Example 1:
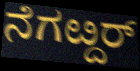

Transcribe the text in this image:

ನೆಗೞ್ದರ್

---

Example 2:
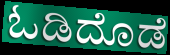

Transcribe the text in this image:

ಓಡಿದೊಡೆ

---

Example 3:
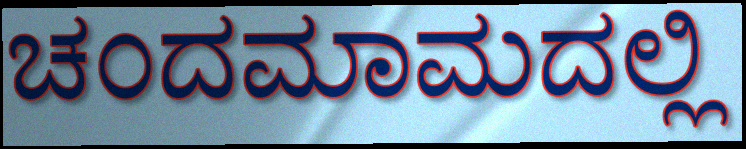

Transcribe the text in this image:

ಚಂದಮಾಮದಲ್ಲಿ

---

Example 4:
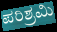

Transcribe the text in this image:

ಪರಿಶ್ರಮಿ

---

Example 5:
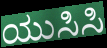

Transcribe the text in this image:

ಯುಸಿಸಿ